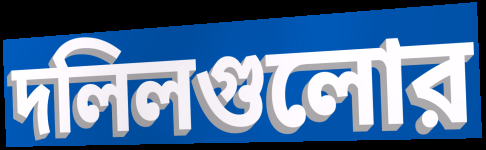
দলিলগুলোর